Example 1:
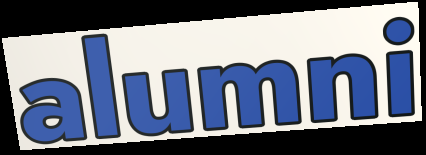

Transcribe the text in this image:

alumni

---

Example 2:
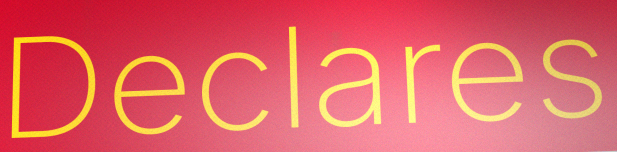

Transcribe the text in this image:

Declares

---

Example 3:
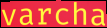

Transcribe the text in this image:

varcha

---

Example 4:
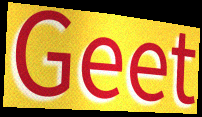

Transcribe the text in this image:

Geet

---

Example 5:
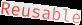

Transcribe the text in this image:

Reusable